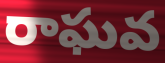
రాఘవ